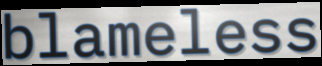
blameless